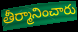
తీర్మానించారు